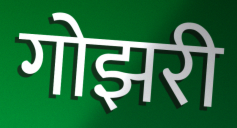
गोझरी